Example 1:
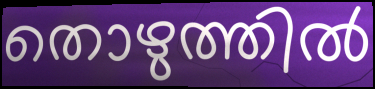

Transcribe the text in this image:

തൊഴുത്തിൽ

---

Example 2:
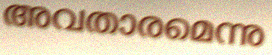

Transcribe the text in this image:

അവതാരമെന്നു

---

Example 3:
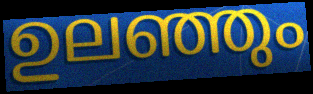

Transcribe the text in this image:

ഉലഞ്ഞും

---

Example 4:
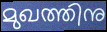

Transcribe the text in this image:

മുഖത്തിനു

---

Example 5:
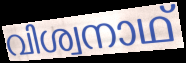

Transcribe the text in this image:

വിശ്വനാഥ്